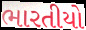
ભારતીયો